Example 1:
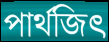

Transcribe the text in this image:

পার্থজিৎ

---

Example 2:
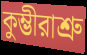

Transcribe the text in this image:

কুম্ভীরাশ্রু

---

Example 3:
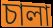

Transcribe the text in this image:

চালা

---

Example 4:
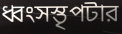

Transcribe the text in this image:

ধ্বংসস্তৃপটার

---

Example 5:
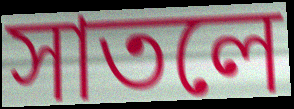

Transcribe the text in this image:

সাতলে